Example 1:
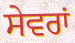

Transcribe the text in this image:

ਸੇਵਰਾਂ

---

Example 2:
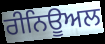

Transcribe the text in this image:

ਰੀਨਿਊਅਲ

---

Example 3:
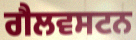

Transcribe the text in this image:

ਗੈਲਵਸਟਨ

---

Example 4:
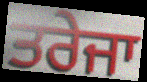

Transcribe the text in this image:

ਤਰੇਜਾ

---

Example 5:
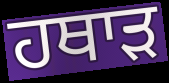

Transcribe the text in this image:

ਹਥਾੜ